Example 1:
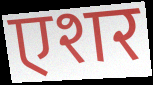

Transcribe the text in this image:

एशर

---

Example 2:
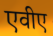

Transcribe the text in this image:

एवीए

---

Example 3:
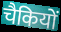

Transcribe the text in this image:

चैकियों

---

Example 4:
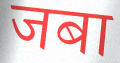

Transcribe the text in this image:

जबा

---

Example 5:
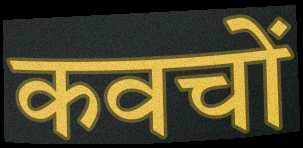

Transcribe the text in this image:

कवचों